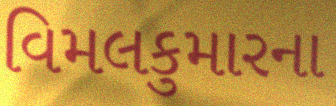
વિમલકુમારના